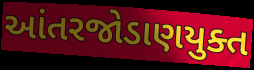
આંતરજોડાણયુક્ત